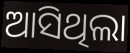
ଆସିଥିଲା